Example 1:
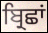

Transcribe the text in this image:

ਬ੍ਰਿਛਾਂ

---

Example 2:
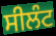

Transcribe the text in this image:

ਸੀਲੰਟ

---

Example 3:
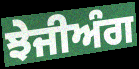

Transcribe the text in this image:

ਝੇਜੀਅੰਗ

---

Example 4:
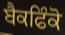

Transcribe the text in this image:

ਬੈਕਫਿੰਕੋ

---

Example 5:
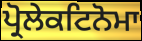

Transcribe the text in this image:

ਪ੍ਰੋਲੇਕਟਿਨੋਮਾ